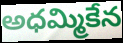
అధమ్మికేన